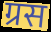
ग्रस